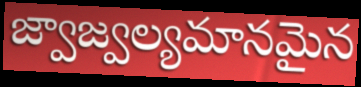
జ్వాజ్వల్యమానమైన